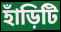
হাঁড়িটি